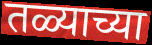
तळ्याच्या